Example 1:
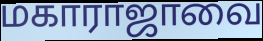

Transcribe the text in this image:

மகாராஜாவை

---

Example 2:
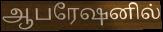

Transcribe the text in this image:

ஆபரேஷனில்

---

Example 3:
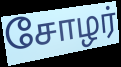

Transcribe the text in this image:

சோழர்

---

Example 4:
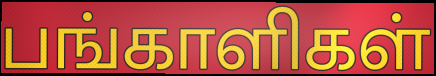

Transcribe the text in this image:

பங்காளிகள்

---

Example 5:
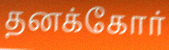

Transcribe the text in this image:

தனக்கோர்